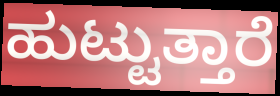
ಹುಟ್ಟುತ್ತಾರೆ